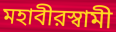
মহাবীরস্বামী